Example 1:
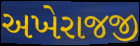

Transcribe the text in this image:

અખેરાજજી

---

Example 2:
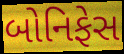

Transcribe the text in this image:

બોનિફેસ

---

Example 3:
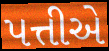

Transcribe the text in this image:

પત્તીએ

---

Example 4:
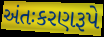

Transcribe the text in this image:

અંતઃકરણરૂપે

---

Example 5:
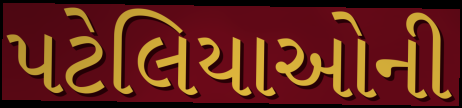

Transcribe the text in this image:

પટેલિયાઓની